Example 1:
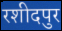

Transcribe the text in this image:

रशीदपुर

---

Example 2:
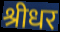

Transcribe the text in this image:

श्रीधर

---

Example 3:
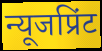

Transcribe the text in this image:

न्यूजप्रिंट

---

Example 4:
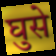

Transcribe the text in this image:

घुसे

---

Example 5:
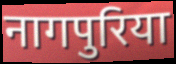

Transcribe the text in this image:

नागपुरिया